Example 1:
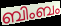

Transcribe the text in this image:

ബിംബം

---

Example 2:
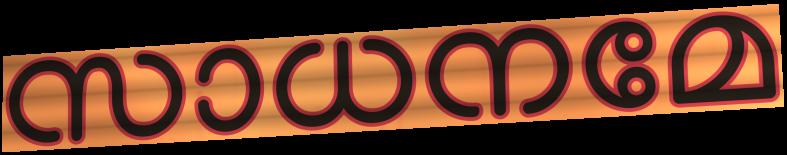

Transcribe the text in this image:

സാധനമേ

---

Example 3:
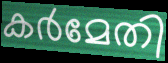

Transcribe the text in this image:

കർമേതി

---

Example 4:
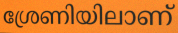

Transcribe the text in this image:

ശ്രേണിയിലാണ്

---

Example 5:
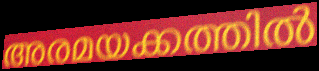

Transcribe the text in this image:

അരമയക്കത്തിൽ